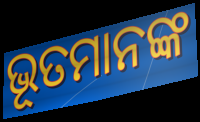
ଭୂତମାନଙ୍କ